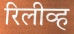
रिलीव्ह